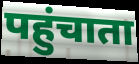
पहुंचाता